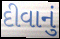
દીવાનું